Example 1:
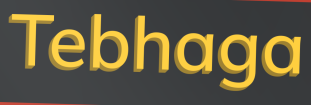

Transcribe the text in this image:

Tebhaga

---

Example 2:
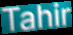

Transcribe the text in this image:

Tahir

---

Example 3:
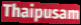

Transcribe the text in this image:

Thaipusam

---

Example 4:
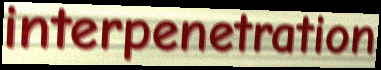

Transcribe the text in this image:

interpenetration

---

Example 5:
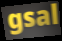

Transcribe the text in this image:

gsal